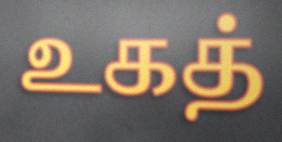
உகத்